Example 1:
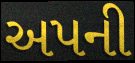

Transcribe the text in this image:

અપની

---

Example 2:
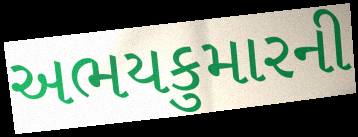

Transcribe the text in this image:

અભયકુમારની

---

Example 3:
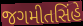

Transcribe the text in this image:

જગમીતસિંહે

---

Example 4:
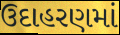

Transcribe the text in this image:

ઉદાહરણમાં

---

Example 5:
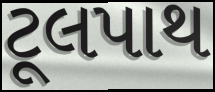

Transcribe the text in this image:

ટૂલપાથ